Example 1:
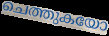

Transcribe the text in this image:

ചെത്തുകയോ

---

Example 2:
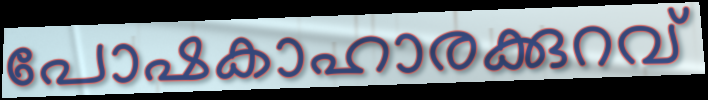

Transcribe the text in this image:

പോഷകാഹാരക്കുറവ്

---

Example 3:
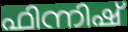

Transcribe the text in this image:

ഫിന്നിഷ്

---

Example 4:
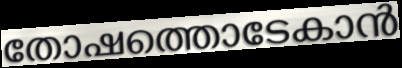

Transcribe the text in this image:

തോഷത്തൊടേകാൻ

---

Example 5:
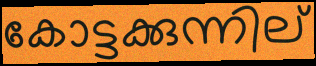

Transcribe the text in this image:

കോട്ടക്കുന്നില്